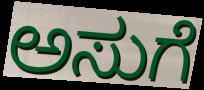
ಅಸುಗೆ